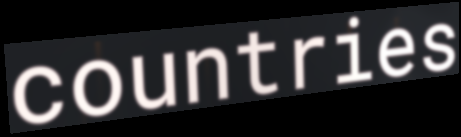
countries